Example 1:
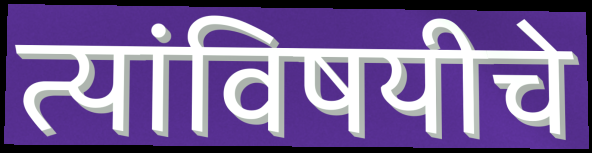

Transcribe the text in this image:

त्यांविषयीचे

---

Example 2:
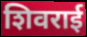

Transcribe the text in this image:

शिवराई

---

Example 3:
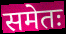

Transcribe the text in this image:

समेतः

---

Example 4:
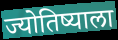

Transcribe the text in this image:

ज्योतिष्याला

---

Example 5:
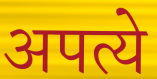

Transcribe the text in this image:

अपत्ये